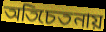
অতিচেতনায়